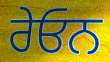
ਰੇਓਨ